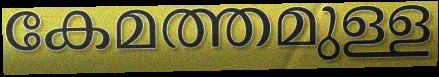
കേമത്തമുള്ള